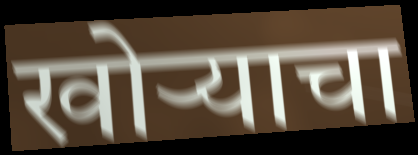
खोर्‍याचा